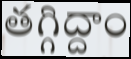
తగ్గిద్దాం